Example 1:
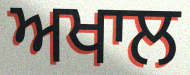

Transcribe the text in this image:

ਅਖਾਲ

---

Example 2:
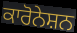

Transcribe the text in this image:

ਕਾਰੋਨੇਸ਼ਨ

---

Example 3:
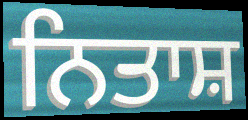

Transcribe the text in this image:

ਨਿਤਾਸ਼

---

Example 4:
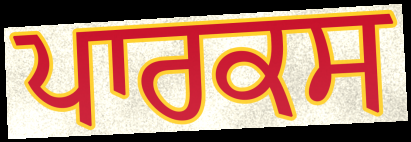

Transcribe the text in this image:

ਪਾਰਕਸ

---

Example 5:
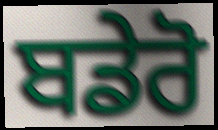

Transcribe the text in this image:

ਬਡੇਰੋ